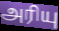
அரியு